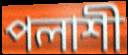
পলাশী